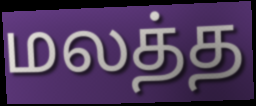
மலத்த